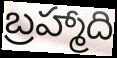
బ్రహ్మాది